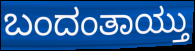
ಬಂದಂತಾಯ್ತು